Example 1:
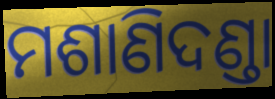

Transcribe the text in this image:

ମଶାଣିଦଣ୍ଡା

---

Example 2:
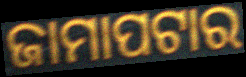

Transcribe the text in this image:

ଜାମାପଟାର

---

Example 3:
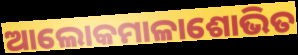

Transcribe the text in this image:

ଆଲୋକମାଳାଶୋଭିତ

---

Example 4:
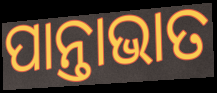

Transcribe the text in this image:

ପାନ୍ତାଭାତ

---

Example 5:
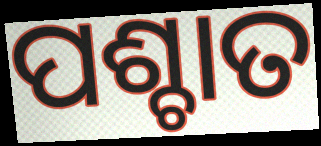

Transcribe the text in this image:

ପଶ୍ଚାତ